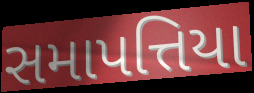
સમાપત્તિયા